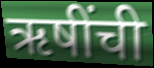
ऋषींची